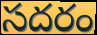
సదరం